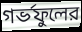
গর্ভফুলের